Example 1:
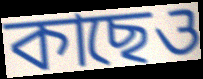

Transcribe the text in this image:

কাছেও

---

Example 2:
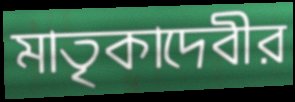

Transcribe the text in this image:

মাতৃকাদেবীর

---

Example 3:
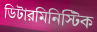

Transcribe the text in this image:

ডিটারমিনিস্টিক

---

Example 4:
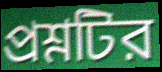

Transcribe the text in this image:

প্রশ্নটির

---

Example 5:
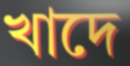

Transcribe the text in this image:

খাদে